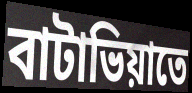
বাটাভিয়াতে